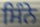
ਸਿੰਨੇ